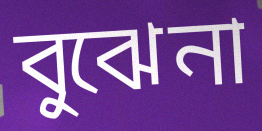
বুঝেনা